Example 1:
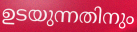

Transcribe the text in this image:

ഉടയുന്നതിനും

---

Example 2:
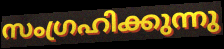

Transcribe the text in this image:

സംഗ്രഹിക്കുന്നു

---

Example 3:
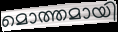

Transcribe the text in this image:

മൊത്തമായി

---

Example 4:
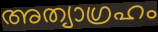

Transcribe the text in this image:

അത്യാഗ്രഹം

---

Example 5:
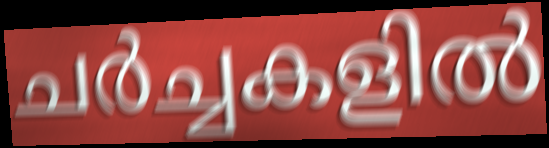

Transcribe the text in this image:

ചർച്ചകളിൽ